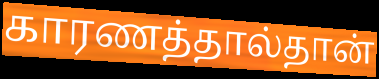
காரணத்தால்தான்